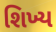
શિખ્ય